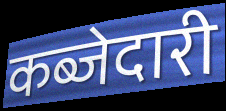
कब्जेदारी